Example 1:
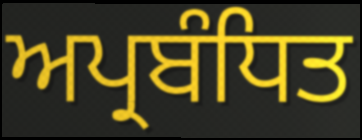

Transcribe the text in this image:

ਅਪ੍ਰਬੰਧਿਤ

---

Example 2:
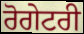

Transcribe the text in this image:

ਰੋਗੇਟਰੀ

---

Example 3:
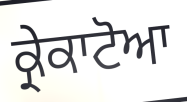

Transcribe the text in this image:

ਕ੍ਰੇਕਾਟੋਆ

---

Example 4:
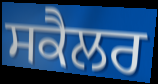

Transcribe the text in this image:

ਸਕੈਲਰ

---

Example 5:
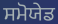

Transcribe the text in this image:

ਸਮੋਯੇਡ